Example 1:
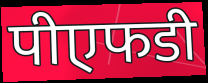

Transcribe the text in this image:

पीएफडी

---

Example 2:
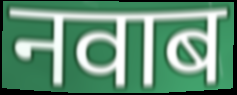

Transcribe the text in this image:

नवाब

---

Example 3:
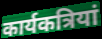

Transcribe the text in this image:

कार्यकत्रियां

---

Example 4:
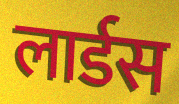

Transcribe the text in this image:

लार्डस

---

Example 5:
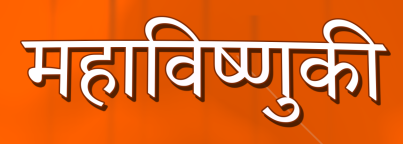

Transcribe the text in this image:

महाविष्णुकी